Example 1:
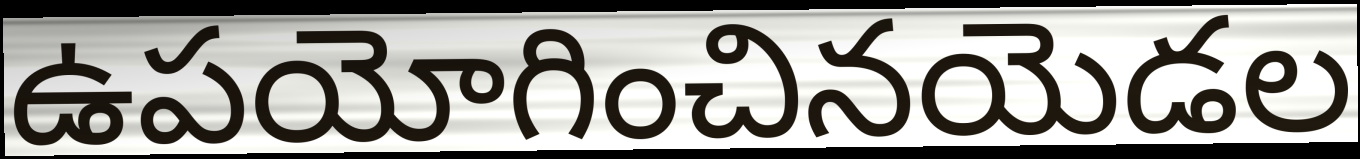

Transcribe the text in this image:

ఉపయోగించినయెడల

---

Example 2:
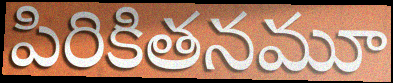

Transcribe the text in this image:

పిరికితనమూ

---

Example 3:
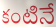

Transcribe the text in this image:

కంటినే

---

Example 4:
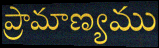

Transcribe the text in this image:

ప్రామాణ్యము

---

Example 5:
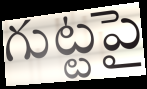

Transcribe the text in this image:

గుట్టపై